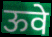
ऊवे